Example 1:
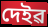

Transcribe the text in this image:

দেইৱ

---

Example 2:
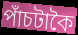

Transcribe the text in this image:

পাঁচটাকৈ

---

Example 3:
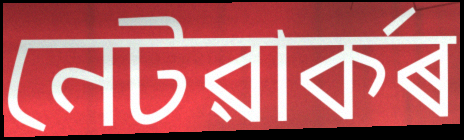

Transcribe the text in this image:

নেটৱাৰ্কৰ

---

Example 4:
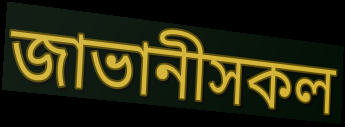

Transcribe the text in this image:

জাভানীসকল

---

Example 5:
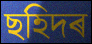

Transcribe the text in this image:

ছহিদৰ